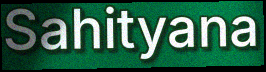
Sahityana